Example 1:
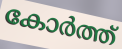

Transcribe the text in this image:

കോർത്ത്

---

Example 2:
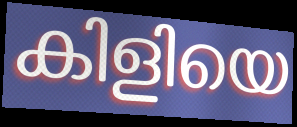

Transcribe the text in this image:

കിളിയെ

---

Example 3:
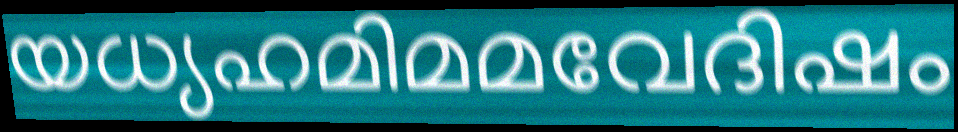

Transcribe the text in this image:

യധ്യഹമിമമവേദിഷം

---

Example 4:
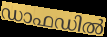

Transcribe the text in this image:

ഡാഫഡിൽ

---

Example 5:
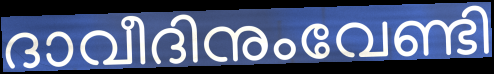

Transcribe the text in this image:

ദാവീദിനുംവേണ്ടി